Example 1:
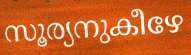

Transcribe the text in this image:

സൂര്യനുകീഴേ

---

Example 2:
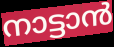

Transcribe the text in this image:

നാട്ടാൻ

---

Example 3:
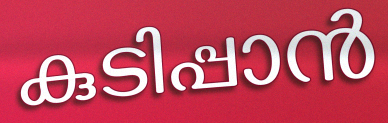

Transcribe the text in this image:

കുടിപ്പാൻ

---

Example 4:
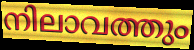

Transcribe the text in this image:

നിലാവത്തും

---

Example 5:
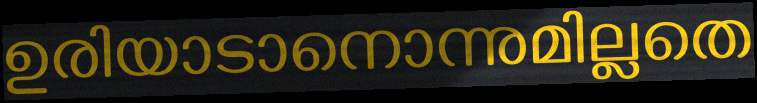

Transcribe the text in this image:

ഉരിയാടാനൊന്നുമില്ലതെ